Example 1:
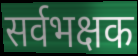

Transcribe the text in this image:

सर्वभक्षक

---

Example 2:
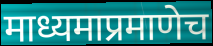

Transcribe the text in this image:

माध्यमाप्रमाणेच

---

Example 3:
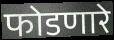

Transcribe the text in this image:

फोडणारे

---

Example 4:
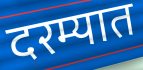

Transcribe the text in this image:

दरम्यात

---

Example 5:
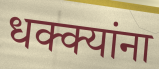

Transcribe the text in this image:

धक्क्यांना